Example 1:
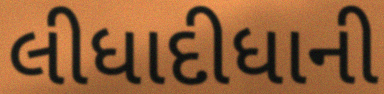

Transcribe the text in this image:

લીધાદીધાની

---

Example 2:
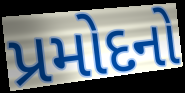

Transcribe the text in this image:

પ્રમોદનો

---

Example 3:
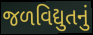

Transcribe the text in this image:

જળવિદ્યુતનું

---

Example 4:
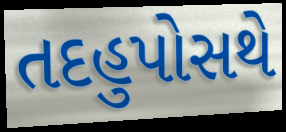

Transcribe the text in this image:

તદહુપોસથે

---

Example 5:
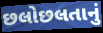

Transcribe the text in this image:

છલોછલતાનું